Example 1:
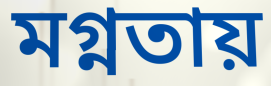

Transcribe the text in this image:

মগ্নতায়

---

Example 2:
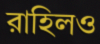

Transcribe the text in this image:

রাহিলও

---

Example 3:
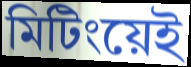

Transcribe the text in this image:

মিটিংয়েই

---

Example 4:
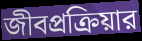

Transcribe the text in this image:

জীবপ্রক্রিয়ার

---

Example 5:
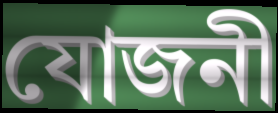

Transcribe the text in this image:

যোজনী